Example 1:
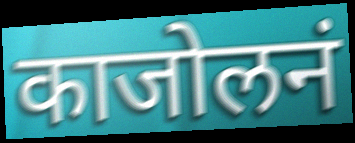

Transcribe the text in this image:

काजोलनं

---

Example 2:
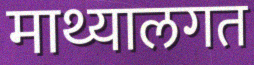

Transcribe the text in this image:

माथ्यालगत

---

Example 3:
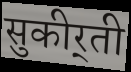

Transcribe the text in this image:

सुकीर्ती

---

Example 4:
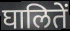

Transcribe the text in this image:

घालितें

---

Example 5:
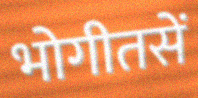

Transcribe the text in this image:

भोगीतसें